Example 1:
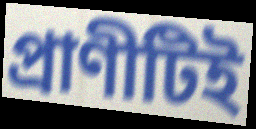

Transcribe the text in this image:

প্রাণীটিই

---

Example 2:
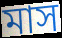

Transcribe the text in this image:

মাস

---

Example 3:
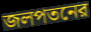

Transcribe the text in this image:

জলপতনের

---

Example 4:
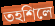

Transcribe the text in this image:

তহশিলে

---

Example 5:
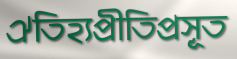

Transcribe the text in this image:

ঐতিহ্যপ্রীতিপ্রসূত